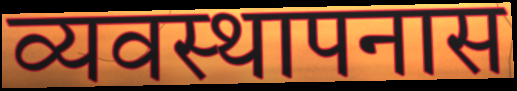
व्यवस्थापनास